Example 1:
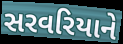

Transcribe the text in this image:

સરવરિયાને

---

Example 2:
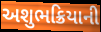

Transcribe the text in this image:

અશુભક્રિયાની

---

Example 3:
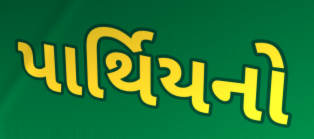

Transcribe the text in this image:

પાર્થિયનો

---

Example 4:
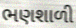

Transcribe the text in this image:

ભણશાળી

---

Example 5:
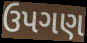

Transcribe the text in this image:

ઉપગણ